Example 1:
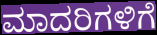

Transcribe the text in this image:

ಮಾದರಿಗಳಿಗೆ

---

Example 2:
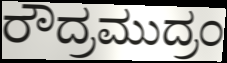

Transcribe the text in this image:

ರೌದ್ರಮುದ್ರಂ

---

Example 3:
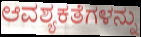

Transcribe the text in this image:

ಆವಶ್ಯಕತೆಗಳನ್ನು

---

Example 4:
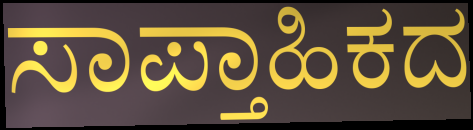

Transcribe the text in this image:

ಸಾಪ್ತಾಹಿಕದ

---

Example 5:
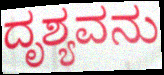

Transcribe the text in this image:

ದೃಶ್ಯವನು